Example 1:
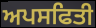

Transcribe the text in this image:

ਅਪਸਫਿਤੀ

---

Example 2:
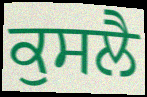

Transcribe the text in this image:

ਕੁਸਲੈ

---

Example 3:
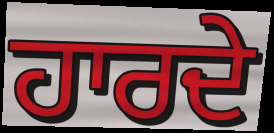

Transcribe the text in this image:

ਹਾਰਦੇ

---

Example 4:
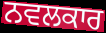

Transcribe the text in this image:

ਨਵਲਕਾਰ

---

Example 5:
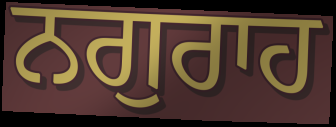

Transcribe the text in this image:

ਨਗੁਰਾਹ